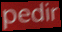
pedir